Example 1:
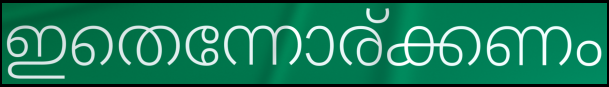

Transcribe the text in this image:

ഇതെന്നോര്ക്കണം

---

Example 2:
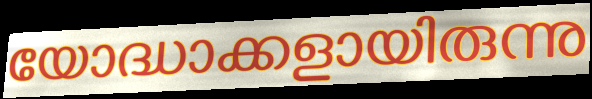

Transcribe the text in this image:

യോദ്ധാക്കളായിരുന്നു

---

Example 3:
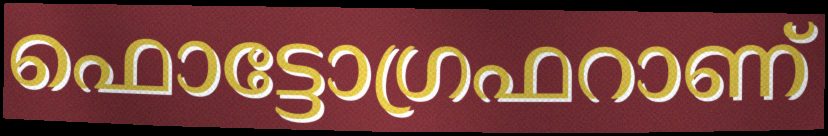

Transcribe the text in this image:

ഫൊട്ടോഗ്രഫറാണ്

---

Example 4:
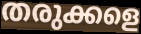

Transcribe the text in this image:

തരുക്കളെ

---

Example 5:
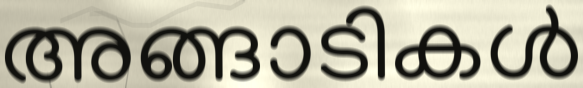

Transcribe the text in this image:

അങ്ങാടികൾ